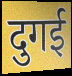
दुगई